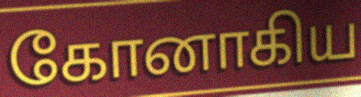
கோனாகிய